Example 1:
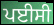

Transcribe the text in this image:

ਪਈਸੀ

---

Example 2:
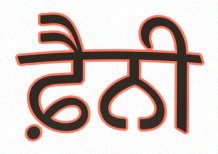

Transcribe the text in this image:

ਫ਼ੈਨੀ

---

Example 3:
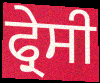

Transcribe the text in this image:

ਫ੍ਰੇਸੀ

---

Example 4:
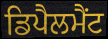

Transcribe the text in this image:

ਡਿਪੈਲਮੈਂਟ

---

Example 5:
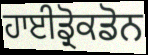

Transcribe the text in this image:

ਹਾਈਡ੍ਰੋਕਡੋਨ